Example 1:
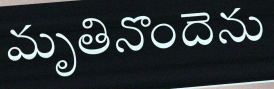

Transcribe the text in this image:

మృతినొందెను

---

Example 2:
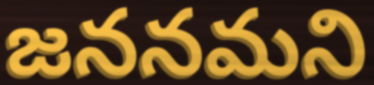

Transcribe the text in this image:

జననమని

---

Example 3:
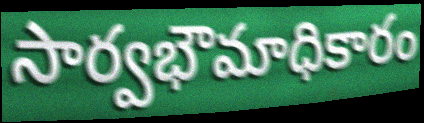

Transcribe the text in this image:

సార్వభౌమాధికారం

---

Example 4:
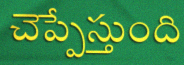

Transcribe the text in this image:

చెప్పేస్తుంది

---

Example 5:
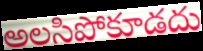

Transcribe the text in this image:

అలసిపోకూడదు